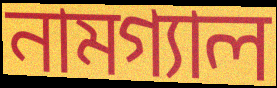
নামগ্যাল